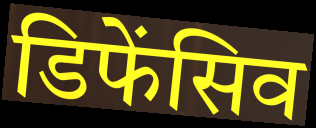
डिफेंसिव